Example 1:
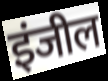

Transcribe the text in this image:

इंजील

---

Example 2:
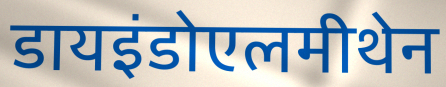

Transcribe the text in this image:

डायइंडोएलमीथेन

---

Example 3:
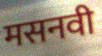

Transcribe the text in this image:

मसनवी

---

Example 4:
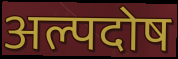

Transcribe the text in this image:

अल्पदोष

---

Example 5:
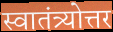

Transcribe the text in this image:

स्वातंत्र्योत्तर